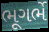
ભૂગર્ભે